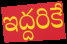
ఇద్దరికే